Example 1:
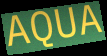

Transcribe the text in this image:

AQUA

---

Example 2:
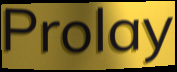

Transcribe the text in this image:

Prolay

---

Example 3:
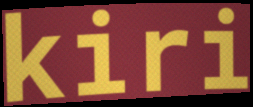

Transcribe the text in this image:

kiri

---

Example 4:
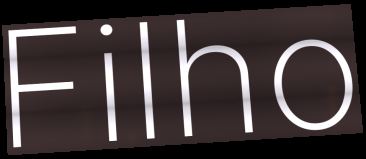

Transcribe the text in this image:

Filho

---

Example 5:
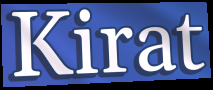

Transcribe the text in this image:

Kirat